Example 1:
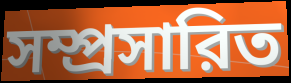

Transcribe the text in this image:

সম্প্রসারিত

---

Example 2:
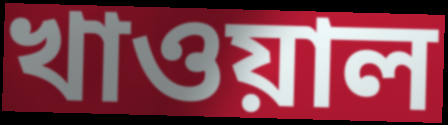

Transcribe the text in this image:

খাওয়াল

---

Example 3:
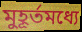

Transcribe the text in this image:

মুহূর্তমধ্যে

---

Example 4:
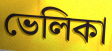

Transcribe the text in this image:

ভেলিকা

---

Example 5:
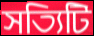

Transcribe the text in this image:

সত্যিটি